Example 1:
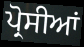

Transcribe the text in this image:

ਪ੍ਰੋਸੀਆਂ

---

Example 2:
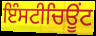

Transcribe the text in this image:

ਇੰਸਟੀਚਿਊਂਟ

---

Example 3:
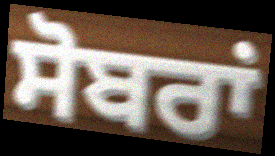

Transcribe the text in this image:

ਸੋਬਰਾਂ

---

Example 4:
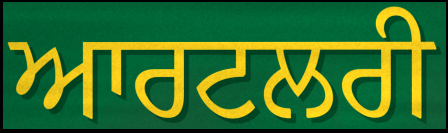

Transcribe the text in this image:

ਆਰਟਲਰੀ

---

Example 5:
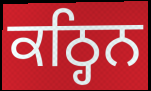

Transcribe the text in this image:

ਕਠ੍ਹਿਨ